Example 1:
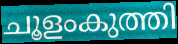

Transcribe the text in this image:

ചൂളംകുത്തി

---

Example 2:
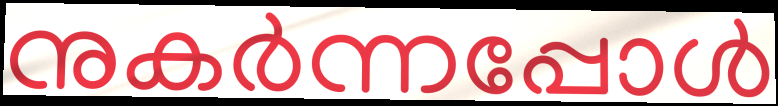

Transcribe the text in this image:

നുകർന്നപ്പോൾ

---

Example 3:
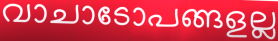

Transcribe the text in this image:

വാചാടോപങ്ങളല്ല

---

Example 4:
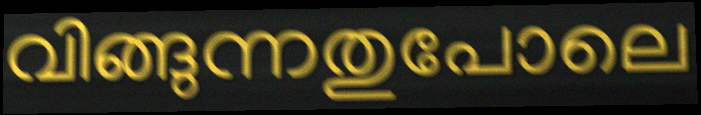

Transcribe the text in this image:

വിങ്ങുന്നതുപോലെ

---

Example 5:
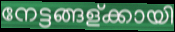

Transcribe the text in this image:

നേട്ടങ്ങള്ക്കായി